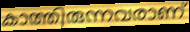
കാത്തിരുന്നവരാണ്